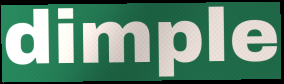
dimple